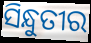
ସିନ୍ଧୁତୀର